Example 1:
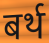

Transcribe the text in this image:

बर्थ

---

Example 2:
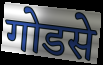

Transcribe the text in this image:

गोडसे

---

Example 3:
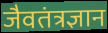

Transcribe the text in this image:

जैवतंत्रज्ञान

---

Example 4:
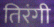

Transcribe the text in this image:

तिरंगी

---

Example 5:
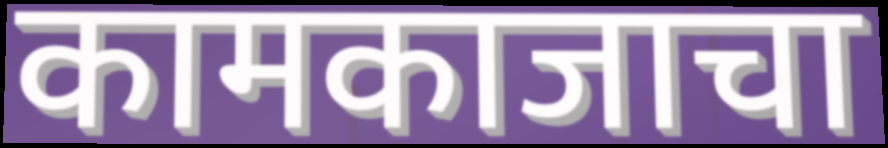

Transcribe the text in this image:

कामकाजाचा